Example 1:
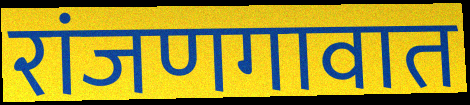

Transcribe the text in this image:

रांजणगावात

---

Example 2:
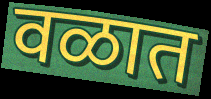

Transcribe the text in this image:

वळात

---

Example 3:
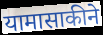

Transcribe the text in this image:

यामासाकीने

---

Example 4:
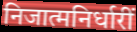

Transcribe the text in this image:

निजात्मनिर्धारीं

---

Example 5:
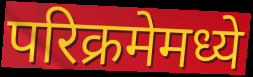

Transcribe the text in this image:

परिक्रमेमध्ये